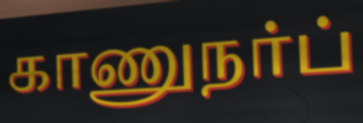
காணுநர்ப்